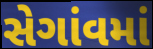
સેગાંવમાં